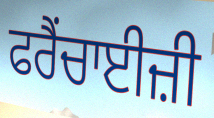
ਫਰੈਂਚਾਈਜ਼ੀ